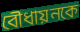
বৌধায়নকে